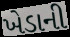
ખેડાની